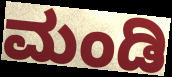
ಮಂಡಿ